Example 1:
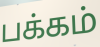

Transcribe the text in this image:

பக்கம்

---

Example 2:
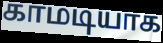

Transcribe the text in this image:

காமடியாக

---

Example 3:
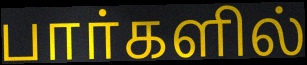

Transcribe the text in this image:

பார்களில்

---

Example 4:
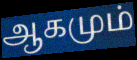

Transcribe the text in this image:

ஆகமும்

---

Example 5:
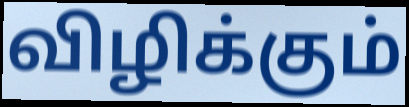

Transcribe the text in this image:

விழிக்கும்